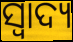
ସ୍ଵାଦ୍ୟ